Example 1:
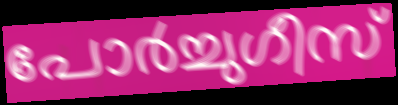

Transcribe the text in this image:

പോർച്ചുഗീസ്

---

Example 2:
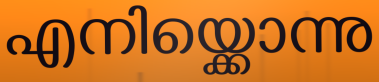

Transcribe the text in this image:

എനിയ്ക്കൊന്നു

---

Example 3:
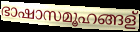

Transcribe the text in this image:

ഭാഷാസമൂഹങ്ങള്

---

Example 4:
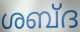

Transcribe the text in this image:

ശബ്ദ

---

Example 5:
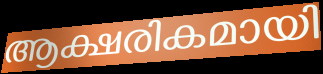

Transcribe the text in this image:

ആക്ഷരികമായി